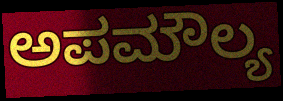
ಅಪಮೌಲ್ಯ